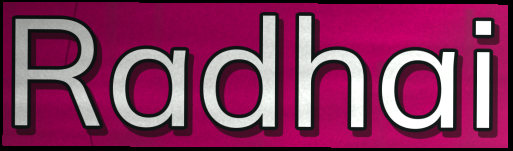
Radhai